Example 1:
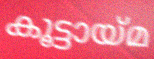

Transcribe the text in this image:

കൂട്ടായ്മ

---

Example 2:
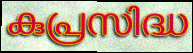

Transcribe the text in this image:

കുപ്രസിദ്ധ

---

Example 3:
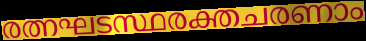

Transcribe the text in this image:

രത്നഘടസ്ഥരക്തചരണാം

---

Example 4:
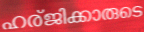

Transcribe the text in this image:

ഹര്ജിക്കാരുടെ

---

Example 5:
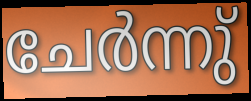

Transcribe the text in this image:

ചേർന്നു്